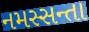
નમસ્સન્તા